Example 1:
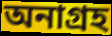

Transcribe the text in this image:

অনাগ্রহ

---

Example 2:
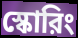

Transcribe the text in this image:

স্কোরিং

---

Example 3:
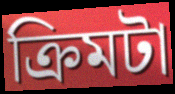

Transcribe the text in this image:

ক্রিমটা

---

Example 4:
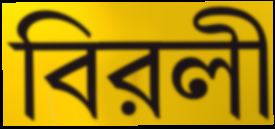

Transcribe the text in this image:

বিরলী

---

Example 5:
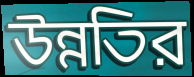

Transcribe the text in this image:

উন্নতির